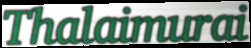
Thalaimurai